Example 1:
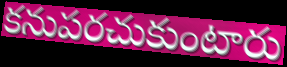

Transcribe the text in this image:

కనుపరచుకుంటారు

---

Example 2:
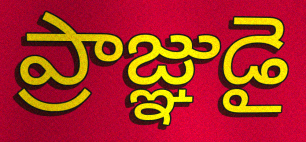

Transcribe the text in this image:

ప్రాజ్ఞుడై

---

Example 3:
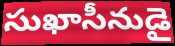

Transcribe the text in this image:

సుఖాసీనుడై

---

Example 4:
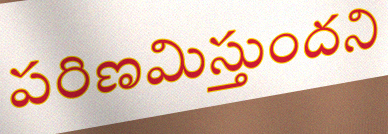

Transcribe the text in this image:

పరిణమిస్తుందని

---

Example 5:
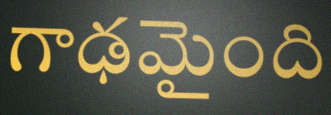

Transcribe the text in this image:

గాఢమైంది